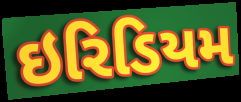
ઇરિડિયમ